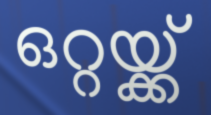
ഒറ്റയ്ക്ക്